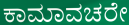
ಕಾಮಾವಚರೇ